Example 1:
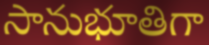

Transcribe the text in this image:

సానుభూతిగా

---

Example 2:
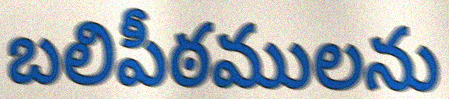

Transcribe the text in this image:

బలిపీఠములను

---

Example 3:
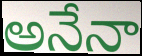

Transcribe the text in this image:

అనేనా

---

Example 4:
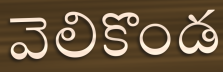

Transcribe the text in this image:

వెలికొండ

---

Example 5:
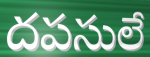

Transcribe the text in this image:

దపసులే